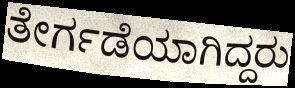
ತೇರ್ಗಡೆಯಾಗಿದ್ದರು